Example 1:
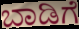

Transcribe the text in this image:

ಬಾಡಿಗೆ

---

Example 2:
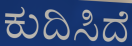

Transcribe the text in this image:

ಕುದಿಸಿದೆ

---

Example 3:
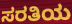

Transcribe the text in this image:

ಸರತಿಯ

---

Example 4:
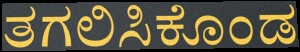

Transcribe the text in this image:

ತಗಲಿಸಿಕೊಂಡ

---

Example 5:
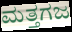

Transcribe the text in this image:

ಮತ್ತಗಜ